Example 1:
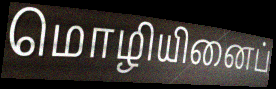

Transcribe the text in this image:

மொழியினைப்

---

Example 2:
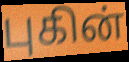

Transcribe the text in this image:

புகின்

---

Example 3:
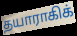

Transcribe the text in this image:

தயாராகிக்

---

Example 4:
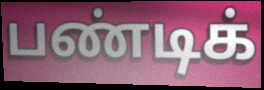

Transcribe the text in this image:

பண்டிக்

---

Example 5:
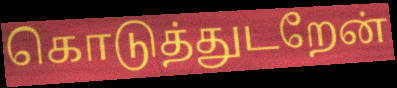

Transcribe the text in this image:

கொடுத்துடறேன்